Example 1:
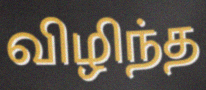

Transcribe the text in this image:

விழிந்த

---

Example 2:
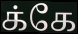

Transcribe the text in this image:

க்கே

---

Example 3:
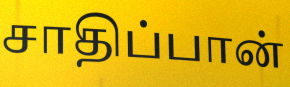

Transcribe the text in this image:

சாதிப்பான்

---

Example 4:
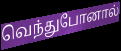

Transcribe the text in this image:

வெந்துபோனால்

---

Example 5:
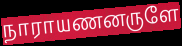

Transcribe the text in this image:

நாராயணனருளே